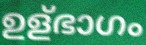
ഉള്ഭാഗം